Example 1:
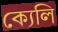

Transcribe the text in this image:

ক্যেলি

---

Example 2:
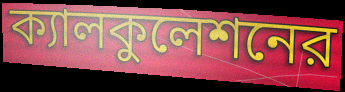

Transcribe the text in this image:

ক্যালকুলেশনের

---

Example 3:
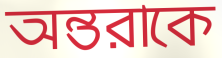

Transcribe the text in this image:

অন্তরাকে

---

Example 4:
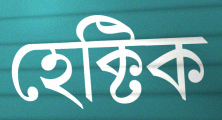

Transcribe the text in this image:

হেক্টিক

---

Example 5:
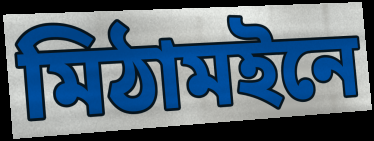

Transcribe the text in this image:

মিঠামইনে